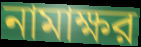
নামাক্ষর